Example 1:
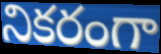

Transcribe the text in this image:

నికరంగా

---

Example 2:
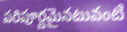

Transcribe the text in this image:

పరిపూర్ణమైనటువంటి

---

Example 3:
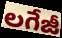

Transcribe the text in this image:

లగేజీ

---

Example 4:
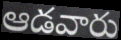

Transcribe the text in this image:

ఆడవారు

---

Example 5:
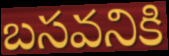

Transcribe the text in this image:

బసవనికి